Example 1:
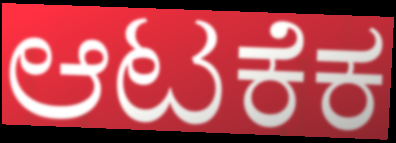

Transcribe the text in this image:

ಆಟಕೆಕ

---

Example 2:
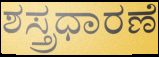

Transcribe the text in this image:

ಶಸ್ತ್ರಧಾರಣೆ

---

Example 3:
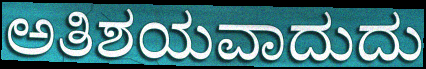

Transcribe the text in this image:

ಅತಿಶಯವಾದುದು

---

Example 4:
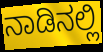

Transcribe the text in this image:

ನಾಡಿನಲ್ಲಿ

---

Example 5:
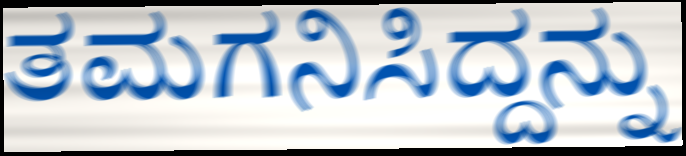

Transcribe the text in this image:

ತಮಗನಿಸಿದ್ದನ್ನು